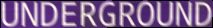
UNDERGROUND